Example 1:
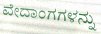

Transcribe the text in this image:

ವೇದಾಂಗಗಳನ್ನು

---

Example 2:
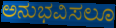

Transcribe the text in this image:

ಅನುಭವಿಸಲೂ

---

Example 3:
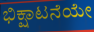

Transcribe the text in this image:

ಭಿಕ್ಷಾಟನೆಯೇ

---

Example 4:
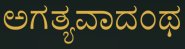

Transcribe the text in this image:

ಅಗತ್ಯವಾದಂಥ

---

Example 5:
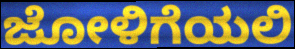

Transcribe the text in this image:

ಜೋಳಿಗೆಯಲಿ